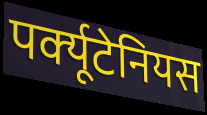
पर्क्यूटेनियस